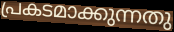
പ്രകടമാക്കുന്നതു